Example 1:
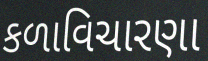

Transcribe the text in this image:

કળાવિચારણા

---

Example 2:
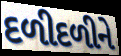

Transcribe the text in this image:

દળીદળીને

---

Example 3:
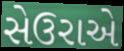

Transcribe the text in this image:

સેઉરાએ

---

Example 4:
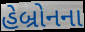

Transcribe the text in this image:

હેબ્રોનના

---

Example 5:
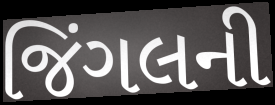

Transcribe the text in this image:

જિંગલની